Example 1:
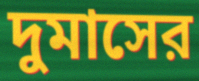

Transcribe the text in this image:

দুমাসের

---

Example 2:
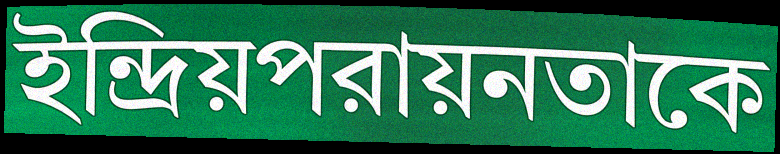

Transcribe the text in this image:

ইন্দ্রিয়পরায়নতাকে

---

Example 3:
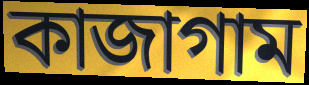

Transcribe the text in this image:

কাজাগাম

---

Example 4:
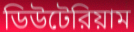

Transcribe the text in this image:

ডিউটেরিয়াম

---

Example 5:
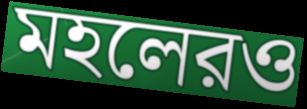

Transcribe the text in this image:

মহলেরও